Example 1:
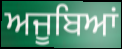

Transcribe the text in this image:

ਅਜੂਬਿਆਂ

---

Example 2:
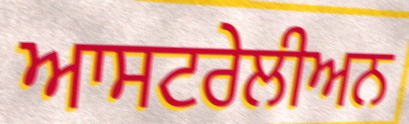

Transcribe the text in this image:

ਆਸਟਰੇਲੀਅਨ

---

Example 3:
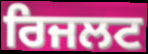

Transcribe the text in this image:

ਰਿਜਲਟ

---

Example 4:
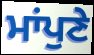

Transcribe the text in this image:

ਮਾਂਪੁਣੇ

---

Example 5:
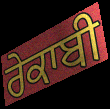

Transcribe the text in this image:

ਰੇਕਾਬੀ